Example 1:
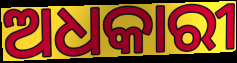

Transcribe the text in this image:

ଅଧକାରୀ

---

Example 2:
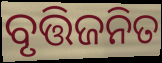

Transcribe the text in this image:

ବୃତ୍ତିଜନିତ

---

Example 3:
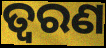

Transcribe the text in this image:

ତ୍ୱରଣ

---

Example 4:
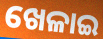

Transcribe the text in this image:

ଖେଳାଇ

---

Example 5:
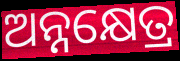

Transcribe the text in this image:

ଅନ୍ନକ୍ଷେତ୍ର